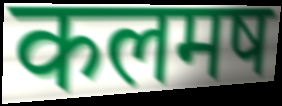
कलमष